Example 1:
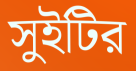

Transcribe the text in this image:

সুইটির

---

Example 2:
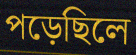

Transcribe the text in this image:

পড়েছিলে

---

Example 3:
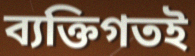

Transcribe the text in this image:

ব্যক্তিগতই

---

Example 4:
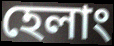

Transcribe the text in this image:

হেলাং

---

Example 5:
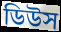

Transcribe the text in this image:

ডিউস